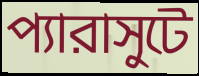
প্যারাসুটে